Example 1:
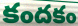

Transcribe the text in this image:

కందకం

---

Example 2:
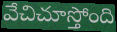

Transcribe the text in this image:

వేచిచూస్తోంది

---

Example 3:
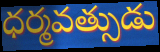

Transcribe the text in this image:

ధర్మవత్సుడు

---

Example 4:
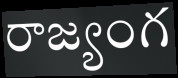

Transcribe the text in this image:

రాజ్యంగ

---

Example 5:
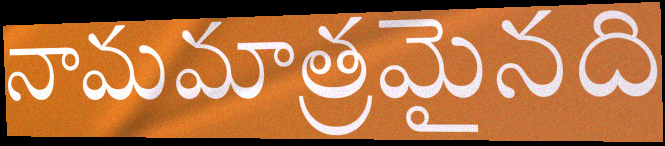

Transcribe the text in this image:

నామమాత్రమైనది